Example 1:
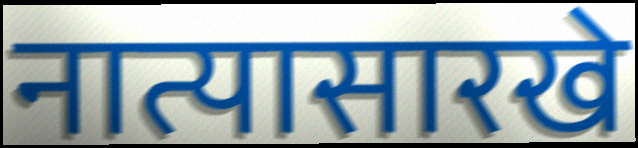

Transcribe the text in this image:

नात्यासारखे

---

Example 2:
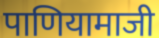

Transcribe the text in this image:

पाणियामाजी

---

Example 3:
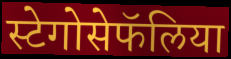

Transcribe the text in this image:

स्टेगोसेफॅलिया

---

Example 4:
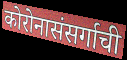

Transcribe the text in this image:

कोरोनासंसर्गाची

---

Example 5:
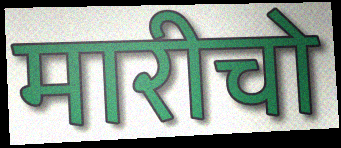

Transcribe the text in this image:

मारीचो